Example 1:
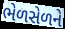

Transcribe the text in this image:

ભેળસેળને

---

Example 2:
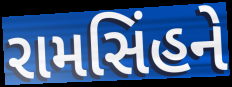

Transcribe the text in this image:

રામસિંહને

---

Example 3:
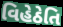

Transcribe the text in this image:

વિહેઠેતિ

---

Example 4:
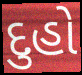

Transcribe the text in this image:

દુહો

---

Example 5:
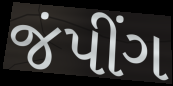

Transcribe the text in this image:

જંપીંગ